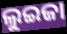
ଲୁଇଜା